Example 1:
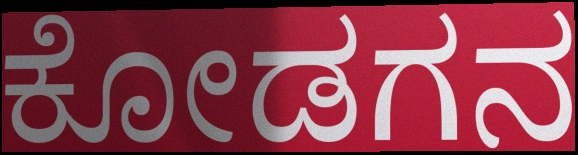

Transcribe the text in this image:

ಕೋಡಗನ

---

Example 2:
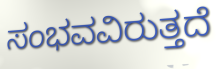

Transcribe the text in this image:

ಸಂಭವವಿರುತ್ತದೆ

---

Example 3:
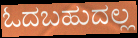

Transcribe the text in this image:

ಓದಬಹುದಲ್ಲ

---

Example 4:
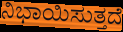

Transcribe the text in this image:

ನಿಭಾಯಿಸುತ್ತದೆ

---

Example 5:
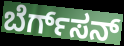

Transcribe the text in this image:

ಬೆರ್ಗ್‌ಸನ್